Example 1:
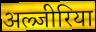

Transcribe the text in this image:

अल्जीरिया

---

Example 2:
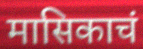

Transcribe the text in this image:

मासिकाचं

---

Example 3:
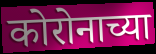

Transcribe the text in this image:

कोरोनाच्या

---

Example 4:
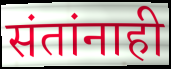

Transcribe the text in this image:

संतांनाही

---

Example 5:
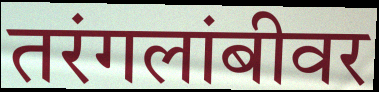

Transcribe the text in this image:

तरंगलांबीवर